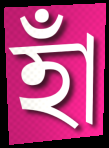
হাঁ